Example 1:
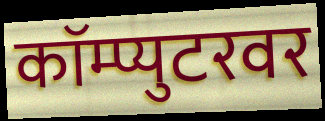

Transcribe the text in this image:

कॉम्प्युटरवर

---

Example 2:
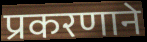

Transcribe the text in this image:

प्रकरणाने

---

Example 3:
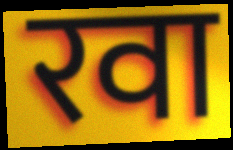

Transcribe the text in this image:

रवा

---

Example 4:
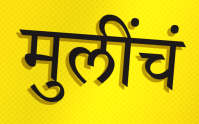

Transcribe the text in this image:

मुलींचं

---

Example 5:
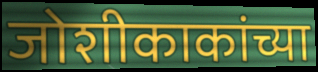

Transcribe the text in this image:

जोशीकाकांच्या